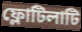
ফ্লোটিলাটি